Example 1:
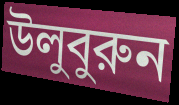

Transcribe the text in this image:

উলুবুরুন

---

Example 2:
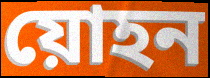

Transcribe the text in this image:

য়োহন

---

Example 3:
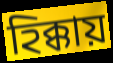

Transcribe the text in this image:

হিক্কায়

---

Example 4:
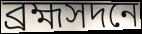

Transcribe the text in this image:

ব্রহ্মসদনে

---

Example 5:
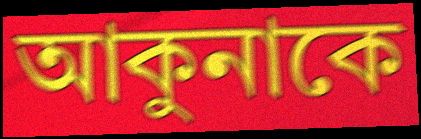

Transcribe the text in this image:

আকুনাকে